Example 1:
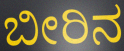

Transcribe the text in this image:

ಬೀರಿನ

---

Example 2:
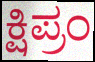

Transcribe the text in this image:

ಕ್ಷಿಪ್ರಂ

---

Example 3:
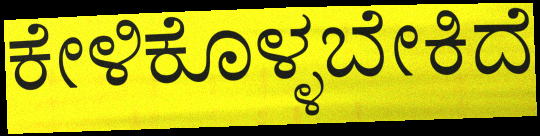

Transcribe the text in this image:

ಕೇಳಿಕೊಳ್ಳಬೇಕಿದೆ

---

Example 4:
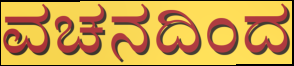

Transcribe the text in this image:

ವಚನದಿಂದ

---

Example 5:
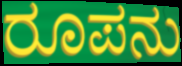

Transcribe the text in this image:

ರೂಪನು